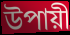
উপায়ী